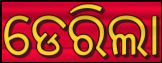
ଡେରିଲା